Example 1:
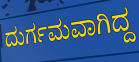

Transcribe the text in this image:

ದುರ್ಗಮವಾಗಿದ್ದ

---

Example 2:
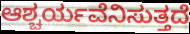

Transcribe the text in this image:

ಆಶ್ಚರ್ಯವೆನಿಸುತ್ತದೆ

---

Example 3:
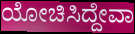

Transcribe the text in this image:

ಯೋಚಿಸಿದ್ದೇವಾ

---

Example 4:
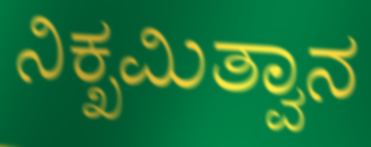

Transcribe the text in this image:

ನಿಕ್ಖಮಿತ್ವಾನ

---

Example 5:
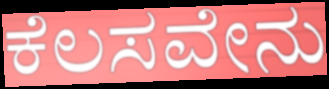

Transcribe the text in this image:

ಕೆಲಸವೇನು